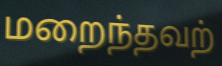
மறைந்தவற்